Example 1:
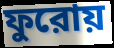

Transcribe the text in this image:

ফুরোয়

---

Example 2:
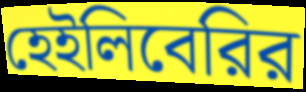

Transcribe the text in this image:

হেইলিবেরির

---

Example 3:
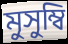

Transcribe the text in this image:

মুসুম্বি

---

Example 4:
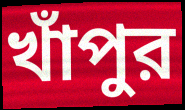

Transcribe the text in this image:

খাঁপুর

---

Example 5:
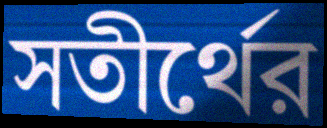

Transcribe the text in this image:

সতীর্থের